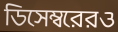
ডিসেম্বরেরও